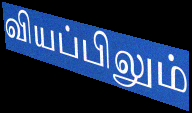
வியப்பிலும்